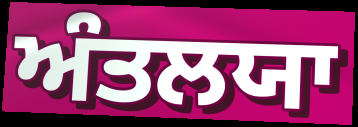
ਅੰਤਲਯਾ